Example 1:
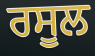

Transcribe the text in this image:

ਰਸੂਲ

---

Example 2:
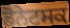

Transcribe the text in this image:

ਡੋਨੇਟਸਕ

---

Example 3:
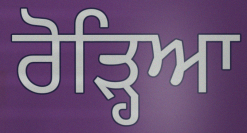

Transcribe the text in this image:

ਰੋੜ੍ਹਿਆ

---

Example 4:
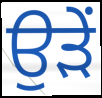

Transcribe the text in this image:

ਉੜੇਂ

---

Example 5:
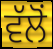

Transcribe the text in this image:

ਵੱਲੋਂ